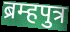
ब्रम्हपुत्र